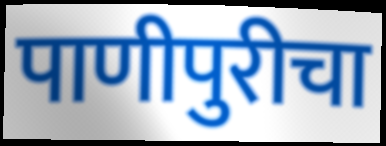
पाणीपुरीचा